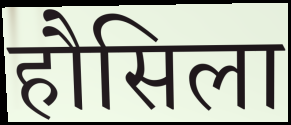
हौसिला